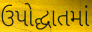
ઉપોદ્ઘાતમાં